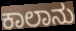
ಕಾಲಾನು